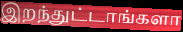
இறந்துட்டாங்களா